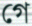
গে